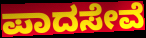
ಪಾದಸೇವೆ